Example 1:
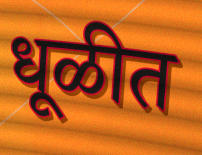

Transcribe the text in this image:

धूळीत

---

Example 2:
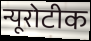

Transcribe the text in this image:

न्यूरोटीक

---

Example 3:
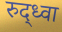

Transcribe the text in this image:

रुद्ध्वा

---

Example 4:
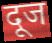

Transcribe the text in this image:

दूज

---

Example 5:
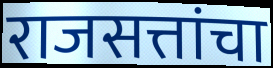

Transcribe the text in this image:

राजसत्तांचा